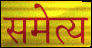
समेत्य